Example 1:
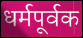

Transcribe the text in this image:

धर्मपूर्वक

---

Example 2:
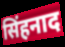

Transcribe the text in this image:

सिंहनाद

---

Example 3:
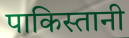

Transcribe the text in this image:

पाकिस्‍तानी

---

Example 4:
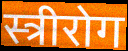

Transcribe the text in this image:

स्त्रीरोग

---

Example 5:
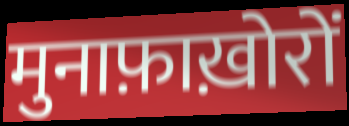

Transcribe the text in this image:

मुनाफ़ाख़ोरों